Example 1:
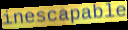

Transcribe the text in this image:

inescapable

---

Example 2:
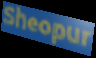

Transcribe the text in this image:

Sheopur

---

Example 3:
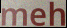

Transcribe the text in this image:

meh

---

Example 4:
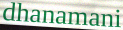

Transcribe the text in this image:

dhanamani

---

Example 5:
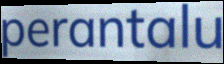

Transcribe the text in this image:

perantalu